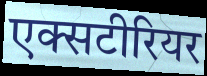
एक्‍सटीरियर